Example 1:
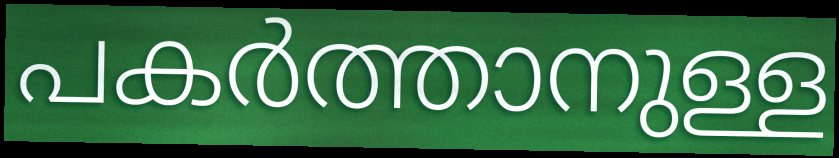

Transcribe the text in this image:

പകർത്താനുള്ള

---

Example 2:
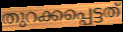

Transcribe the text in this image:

തുറക്കപ്പെട്ടത്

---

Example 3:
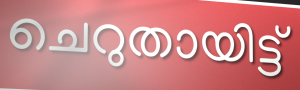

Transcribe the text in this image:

ചെറുതായിട്ട്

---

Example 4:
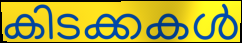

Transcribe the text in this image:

കിടക്കകൾ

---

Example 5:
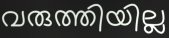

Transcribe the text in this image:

വരുത്തിയില്ല